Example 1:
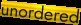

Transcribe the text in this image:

unordered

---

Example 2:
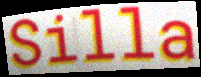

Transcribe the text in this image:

Silla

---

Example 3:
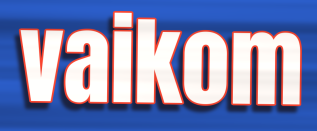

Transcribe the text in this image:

vaikom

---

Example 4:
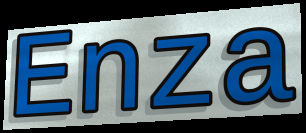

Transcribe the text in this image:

Enza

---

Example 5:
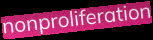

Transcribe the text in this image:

nonproliferation